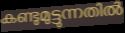
കണ്ടുമുട്ടുന്നതിൽ